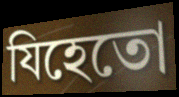
যিহেতো